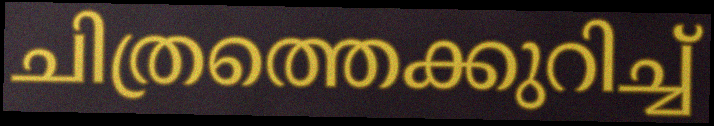
ചിത്രത്തെക്കുറിച്ച്